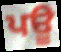
ਪਊ